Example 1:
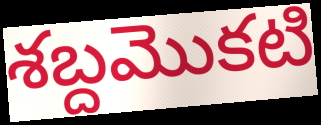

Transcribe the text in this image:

శబ్దమొకటి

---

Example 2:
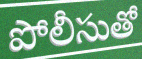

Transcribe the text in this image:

పోలీసుతో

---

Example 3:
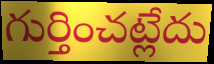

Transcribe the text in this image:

గుర్తించట్లేదు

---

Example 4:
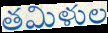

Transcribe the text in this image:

తమిళుల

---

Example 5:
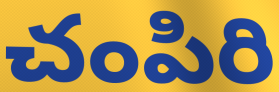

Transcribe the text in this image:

చంపిరి